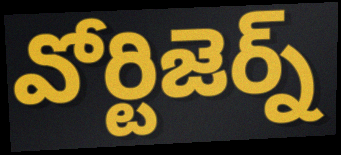
వోర్టిజెర్న్